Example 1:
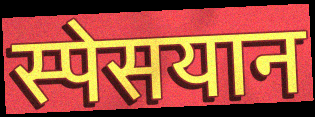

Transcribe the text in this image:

स्पेसयान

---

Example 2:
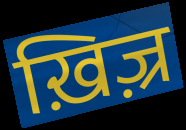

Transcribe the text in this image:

ख़िज़्र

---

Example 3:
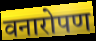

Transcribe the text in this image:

वनारोपण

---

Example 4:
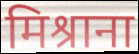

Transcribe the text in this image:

मिश्राना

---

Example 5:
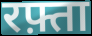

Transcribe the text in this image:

रफ़्ता